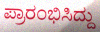
ಪ್ರಾರಂಭಿಸಿದ್ದು